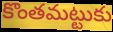
కొంతమట్టుకు